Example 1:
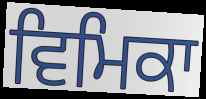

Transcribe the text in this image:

ਵਿਮਿਕਾ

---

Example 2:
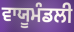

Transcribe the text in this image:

ਵਾਯੂਮੰਡਲੀ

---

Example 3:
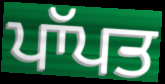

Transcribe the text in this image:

ਪਾੱਪਤ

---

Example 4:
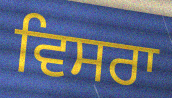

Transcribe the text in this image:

ਵਿਸਰਾ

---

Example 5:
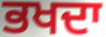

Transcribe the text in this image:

ਭਖਦਾ